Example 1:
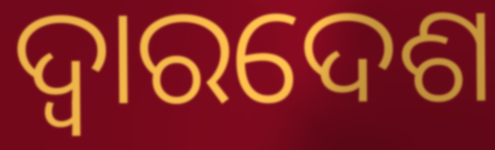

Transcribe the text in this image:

ଦ୍ୱାରଦେଶ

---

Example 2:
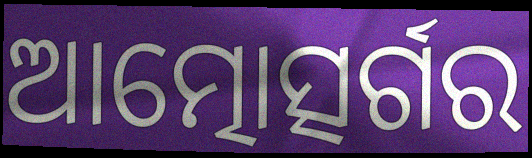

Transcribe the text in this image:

ଆତ୍ମୋତ୍ସର୍ଗର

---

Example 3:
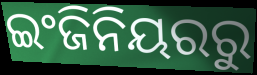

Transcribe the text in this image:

ଇଂଜିନିୟରରୁ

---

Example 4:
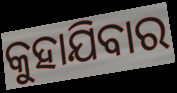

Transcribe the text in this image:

କୁହାଯିବାର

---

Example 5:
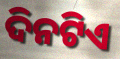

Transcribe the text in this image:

ଦିନଟିଏ